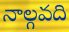
నాల్గవది